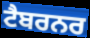
ਟੈਬਰਨਰ